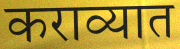
कराव्यात